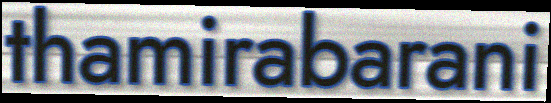
thamirabarani